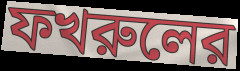
ফখরুলের